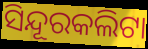
ସିନ୍ଦୂରକଲିଟା